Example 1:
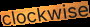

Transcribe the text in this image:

clockwise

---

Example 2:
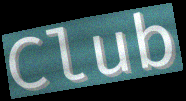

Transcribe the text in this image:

Club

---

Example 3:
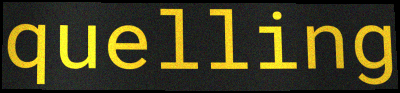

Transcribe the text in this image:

quelling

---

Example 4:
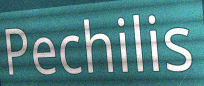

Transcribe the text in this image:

Pechilis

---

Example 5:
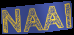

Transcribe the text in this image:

NAAI